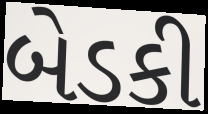
બેડકી